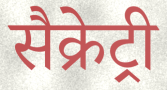
सैक्रेट्री